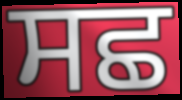
ਸਛ